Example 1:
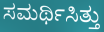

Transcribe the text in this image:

ಸಮರ್ಥಿಸಿತ್ತು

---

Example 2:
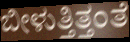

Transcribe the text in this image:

ಬೀಳುತ್ತಿತ್ತಂತೆ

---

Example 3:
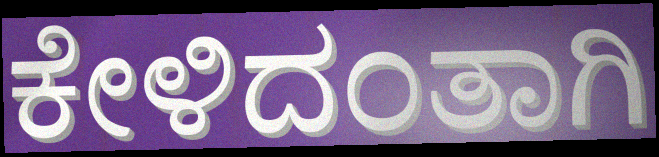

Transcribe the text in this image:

ಕೇಳಿದಂತಾಗಿ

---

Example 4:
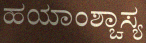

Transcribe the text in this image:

ಹಯಾಂಶ್ಚಾಸ್ಯ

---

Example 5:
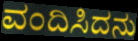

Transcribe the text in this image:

ವಂದಿಸಿದನು